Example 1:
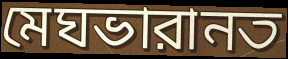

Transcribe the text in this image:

মেঘভারানত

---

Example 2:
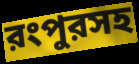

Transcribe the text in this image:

রংপুরসহ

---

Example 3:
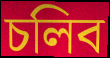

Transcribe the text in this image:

চলিব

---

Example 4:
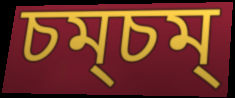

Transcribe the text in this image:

চম্চম্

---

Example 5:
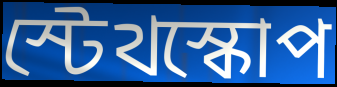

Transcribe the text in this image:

স্টেথস্কোপ